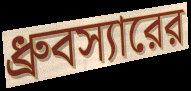
ধ্রুবস্যারের